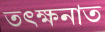
তৎক্ষনাত